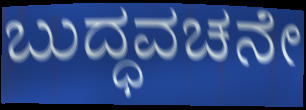
ಬುದ್ಧವಚನೇ